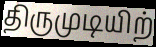
திருமுடியிற்